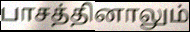
பாசத்தினாலும்